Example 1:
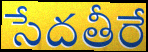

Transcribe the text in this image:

సేదతీరే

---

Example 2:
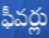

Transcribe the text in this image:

ఫీవర్లు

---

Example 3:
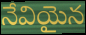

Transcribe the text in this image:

నేవియైన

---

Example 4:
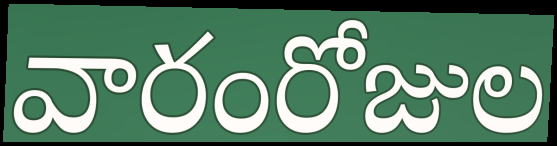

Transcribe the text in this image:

వారంరోజుల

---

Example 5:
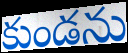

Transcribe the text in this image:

కుండను